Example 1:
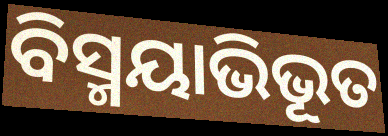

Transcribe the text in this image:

ବିସ୍ମୟାଭିଭୂତ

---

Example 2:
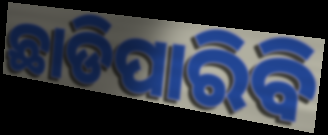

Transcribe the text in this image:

ଛାଡିପାରିବି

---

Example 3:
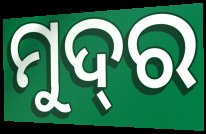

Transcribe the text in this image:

ମୁଦ୍‌ର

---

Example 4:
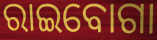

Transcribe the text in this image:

ରାଇବୋଗା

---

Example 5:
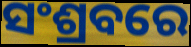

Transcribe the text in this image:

ସଂଶ୍ରବରେ